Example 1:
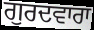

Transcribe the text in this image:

ਗੁਰਦਵਾਰਾ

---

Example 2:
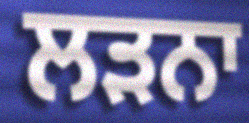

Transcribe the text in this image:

ਲੜਨਾ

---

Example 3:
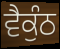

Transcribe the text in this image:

ਵੈਕੁੰਠ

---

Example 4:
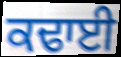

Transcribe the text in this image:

ਕਢਾਈ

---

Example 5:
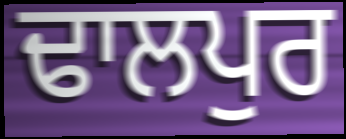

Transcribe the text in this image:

ਢਾਲਪੁਰ